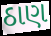
ઠાણ